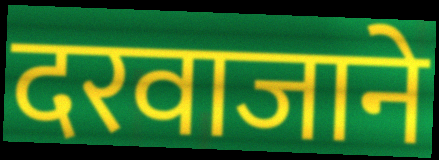
दरवाजाने